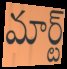
మార్ట్